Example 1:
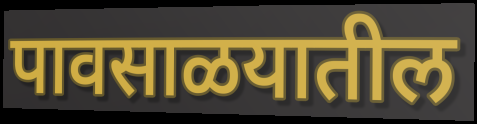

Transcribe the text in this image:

पावसाळयातील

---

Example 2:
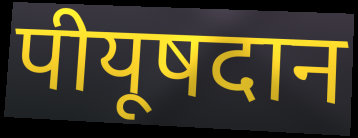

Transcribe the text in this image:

पीयूषदान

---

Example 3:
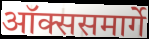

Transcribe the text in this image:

ऑक्ससमार्गे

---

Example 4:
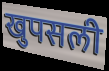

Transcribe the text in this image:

खुपसली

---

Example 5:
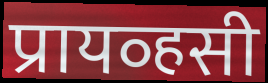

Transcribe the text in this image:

प्रायव्हसी